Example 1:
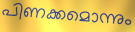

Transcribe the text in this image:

പിണക്കമൊന്നും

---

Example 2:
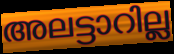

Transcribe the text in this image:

അലട്ടാറില്ല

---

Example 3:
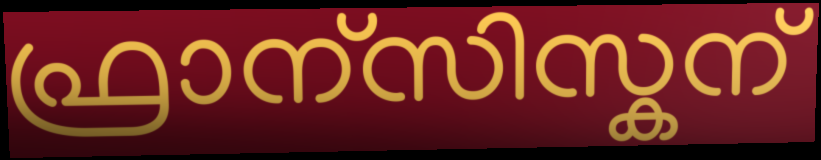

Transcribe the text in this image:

ഫ്രാന്സിസ്കന്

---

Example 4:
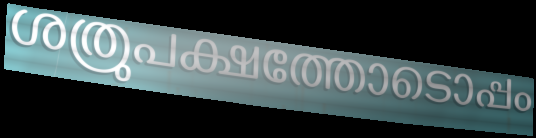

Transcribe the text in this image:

ശത്രുപക്ഷത്തോടൊപ്പം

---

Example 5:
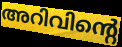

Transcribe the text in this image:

അറിവിന്റെ